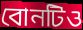
বোনটিও